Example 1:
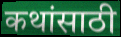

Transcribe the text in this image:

कथांसाठी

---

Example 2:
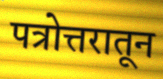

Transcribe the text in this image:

पत्रोत्तरातून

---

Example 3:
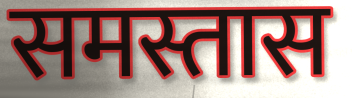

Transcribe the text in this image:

समस्तास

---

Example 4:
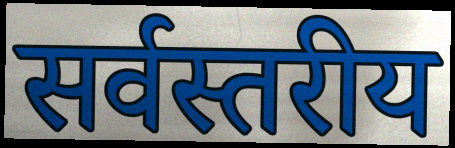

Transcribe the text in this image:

सर्वस्तरीय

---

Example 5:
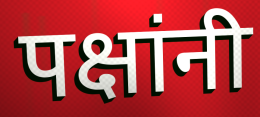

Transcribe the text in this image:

पक्षांनी